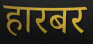
हारबर